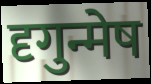
दृगुन्मेष